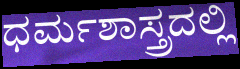
ಧರ್ಮಶಾಸ್ತ್ರದಲ್ಲಿ